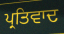
ਪ੍ਰਤਿਵਾਦ